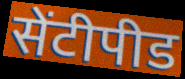
सेंटीपीड